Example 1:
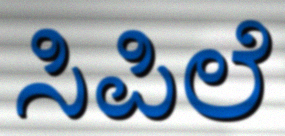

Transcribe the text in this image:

ಸಿಪಿಲೆ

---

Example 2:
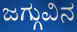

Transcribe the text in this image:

ಜಗ್ಗುವಿನ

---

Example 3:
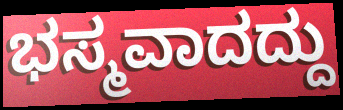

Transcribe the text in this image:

ಭಸ್ಮವಾದದ್ದು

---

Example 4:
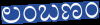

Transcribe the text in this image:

ಲಂಬಣಂ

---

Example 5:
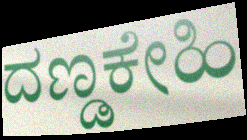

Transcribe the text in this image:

ದಣ್ಡಕೇಹಿ